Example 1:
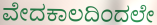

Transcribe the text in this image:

ವೇದಕಾಲದಿಂದಲೇ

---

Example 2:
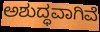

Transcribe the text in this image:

ಅಶುದ್ಧವಾಗಿವೆ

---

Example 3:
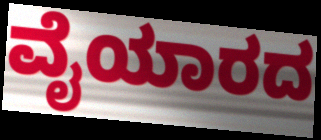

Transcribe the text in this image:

ವೈಯಾರದ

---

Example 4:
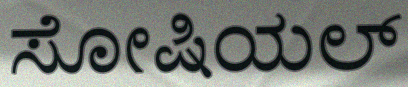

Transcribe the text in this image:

ಸೋಷಿಯಲ್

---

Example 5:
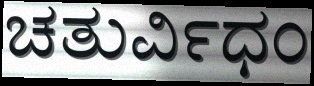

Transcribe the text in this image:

ಚತುರ್ವಿಧಂ